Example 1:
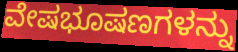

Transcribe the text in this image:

ವೇಷಭೂಷಣಗಳನ್ನು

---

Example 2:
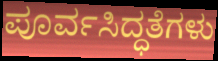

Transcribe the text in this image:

ಪೂರ್ವಸಿದ್ಧತೆಗಳು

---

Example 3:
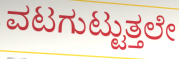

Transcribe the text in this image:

ವಟಗುಟ್ಟುತ್ತಲೇ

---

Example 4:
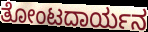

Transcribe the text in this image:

ತೋಂಟದಾರ್ಯನ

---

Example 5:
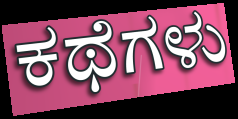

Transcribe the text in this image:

ಕಥೆಗಳು